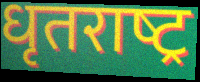
धृतराष्ट्र